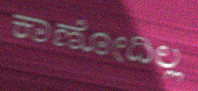
ಕಾಣೋದಿಲ್ಲ